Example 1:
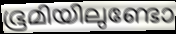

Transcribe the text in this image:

ഭൂമിയിലുണ്ടോ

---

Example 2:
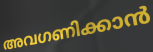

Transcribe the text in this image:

അവഗണിക്കാൻ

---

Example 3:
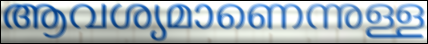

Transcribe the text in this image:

ആവശ്യമാണെന്നുള്ള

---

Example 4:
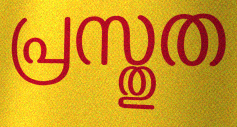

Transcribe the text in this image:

പ്രസ്തുത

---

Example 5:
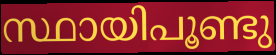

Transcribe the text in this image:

സ്ഥായിപൂണ്ടു